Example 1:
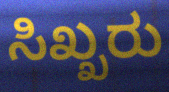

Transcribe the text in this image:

ಸಿಖ್ಖರು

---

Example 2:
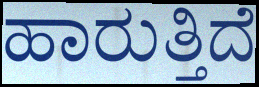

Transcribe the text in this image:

ಹಾರುತ್ತಿದೆ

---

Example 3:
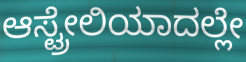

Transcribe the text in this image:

ಆಸ್ಟ್ರೇಲಿಯಾದಲ್ಲೇ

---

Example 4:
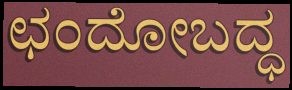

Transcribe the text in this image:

ಛಂದೋಬದ್ಧ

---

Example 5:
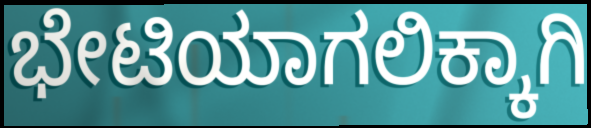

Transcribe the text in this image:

ಭೇಟಿಯಾಗಲಿಕ್ಕಾಗಿ